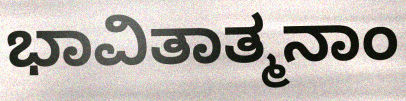
ಭಾವಿತಾತ್ಮನಾಂ